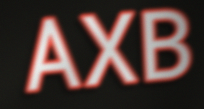
AXB